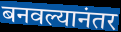
बनवल्यानंतर